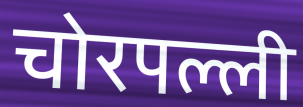
चोरपल्ली